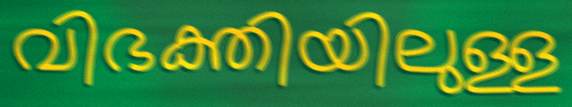
വിഭക്തിയിലുള്ള